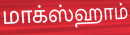
மாக்ஸ்ஹாம்